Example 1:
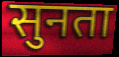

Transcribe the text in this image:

सुनता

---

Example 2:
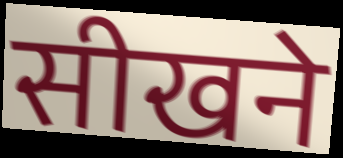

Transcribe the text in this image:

सीखने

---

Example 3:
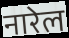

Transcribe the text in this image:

नारेल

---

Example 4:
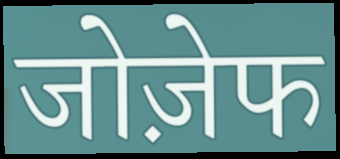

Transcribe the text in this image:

जोज़ेफ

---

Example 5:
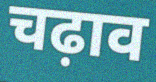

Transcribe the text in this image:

चढ़ाव